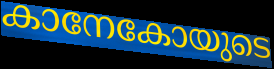
കാനേകോയുടെ